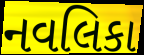
નવલિકા